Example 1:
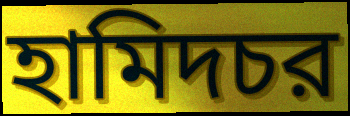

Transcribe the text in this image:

হামিদচর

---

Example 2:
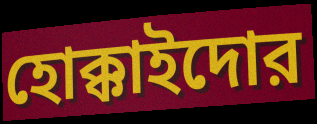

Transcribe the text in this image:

হোক্কাইদোর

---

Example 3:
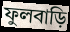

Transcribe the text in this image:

ফুলবাড়ি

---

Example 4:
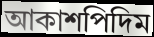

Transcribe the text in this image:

আকাশপিদিম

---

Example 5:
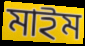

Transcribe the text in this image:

মাইম